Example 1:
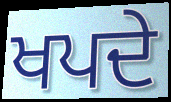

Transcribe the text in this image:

ਖਪਦੇ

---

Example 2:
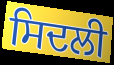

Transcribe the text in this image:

ਸਿਦਲੀ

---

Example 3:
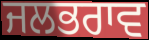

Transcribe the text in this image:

ਜਲਭਰਾਵ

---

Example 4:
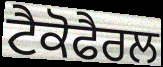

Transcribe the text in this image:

ਟੈਕੋਫੈਰਲ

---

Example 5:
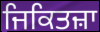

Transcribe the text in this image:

ਜਿਕਿਤਜ਼ਾ